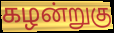
கழன்றுகு